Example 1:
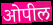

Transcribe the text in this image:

ओपील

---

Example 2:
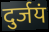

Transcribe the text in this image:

दुर्जयं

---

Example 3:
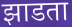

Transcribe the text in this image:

झाडता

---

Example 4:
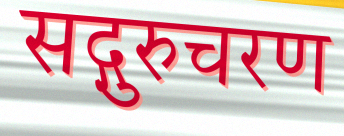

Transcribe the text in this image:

सद्गुरुचरण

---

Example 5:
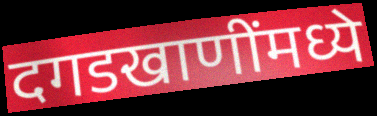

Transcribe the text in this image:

दगडखाणींमध्ये